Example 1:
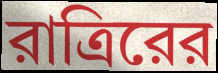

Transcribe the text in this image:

রাত্রিরের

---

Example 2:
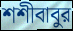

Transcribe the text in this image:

শশীবাবুর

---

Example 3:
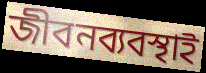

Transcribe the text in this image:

জীবনব্যবস্থাই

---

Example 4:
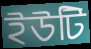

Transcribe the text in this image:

ইউটি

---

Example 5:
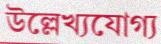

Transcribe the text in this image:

উল্লেখ্যযোগ্য